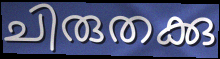
ചിരുതക്കു